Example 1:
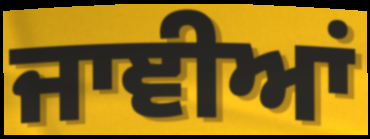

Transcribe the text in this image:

ਜਾਞੀਆਂ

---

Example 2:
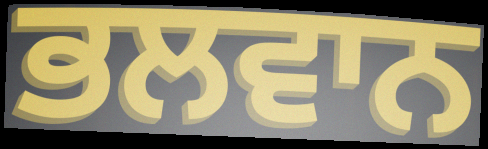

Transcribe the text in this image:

ਭਲਵਾਨ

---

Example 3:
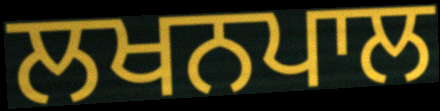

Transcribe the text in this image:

ਲਖਨਪਾਲ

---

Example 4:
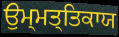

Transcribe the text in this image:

ਉਮ੍ਮਤ੍ਤਿਕਾਯ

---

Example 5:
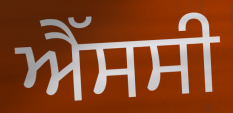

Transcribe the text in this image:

ਐੱਸਸੀ